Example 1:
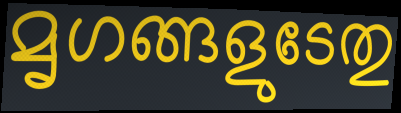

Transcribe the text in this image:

മൃഗങ്ങളുടേതു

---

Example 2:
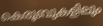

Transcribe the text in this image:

കെരൂബുകളിലും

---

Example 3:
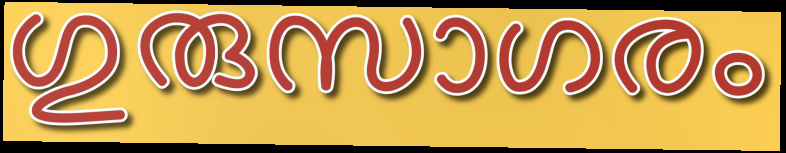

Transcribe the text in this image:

ഗുരുസാഗരം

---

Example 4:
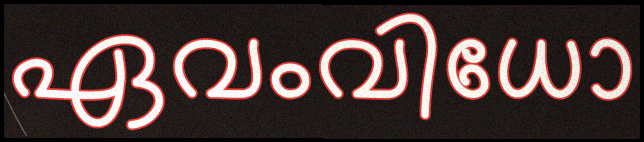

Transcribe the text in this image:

ഏവംവിധോ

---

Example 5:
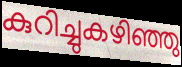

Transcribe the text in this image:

കുറിച്ചുകഴിഞ്ഞു